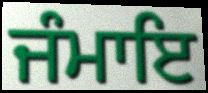
ਜੰਮਾਇ